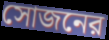
সোজনের